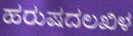
ಹರುಷದಲಖಿಳ